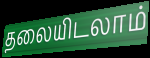
தலையிடலாம்